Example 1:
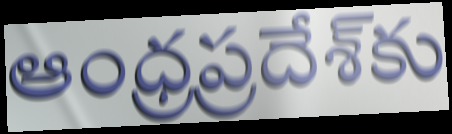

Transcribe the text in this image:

ఆంధ్రప్రదేశ్‌కు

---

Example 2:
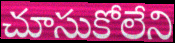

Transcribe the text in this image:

చూసుకోలేని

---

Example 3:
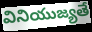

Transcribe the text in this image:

వినియుజ్యతే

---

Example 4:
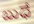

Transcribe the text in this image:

బుధే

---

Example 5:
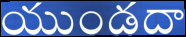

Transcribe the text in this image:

యుండదా